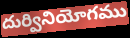
దుర్వినియోగము